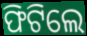
ଫିଟିଲେ